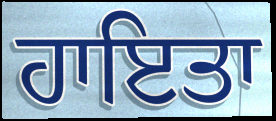
ਹਾਇਤਾ